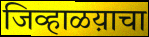
जिव्हाळय़ाचा